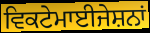
ਵਿਕਟੇਮਾਈਜੇਸ਼ਨਾਂ